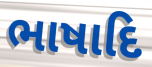
ભાષાદિ